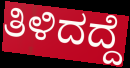
ತಿಳಿದದ್ದೆ